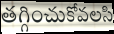
తగ్గించుకోవలసి